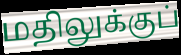
மதிலுக்குப்